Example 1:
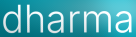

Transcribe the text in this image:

dharma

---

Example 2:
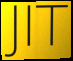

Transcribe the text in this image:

JIT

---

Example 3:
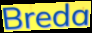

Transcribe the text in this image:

Breda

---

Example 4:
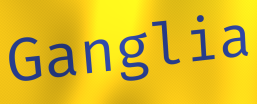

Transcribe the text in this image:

Ganglia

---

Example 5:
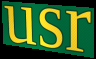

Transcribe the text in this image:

usr